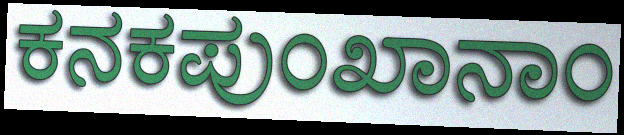
ಕನಕಪುಂಖಾನಾಂ